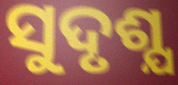
ସୁଦୃଶ୍ଯ